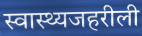
स्वास्थ्यजहरीली